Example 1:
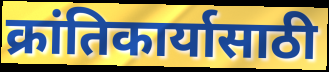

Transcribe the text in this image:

क्रांतिकार्यासाठी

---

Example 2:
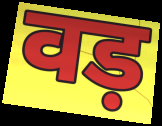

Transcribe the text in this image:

वड़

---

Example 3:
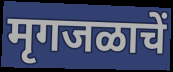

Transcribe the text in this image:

मृगजळाचें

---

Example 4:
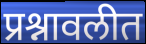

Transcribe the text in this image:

प्रश्नावलीत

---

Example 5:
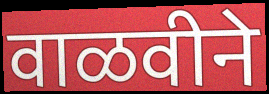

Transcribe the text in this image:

वाळवीने